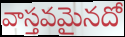
వాస్తవమైనదో